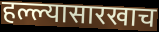
हल्ल्यासारखाच